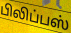
பிலிப்பஸ்